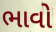
ભાવો